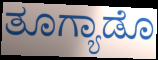
ತೂಗ್ಯಾಡೊ